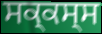
ਸਕ੍ਕਸ੍ਸ